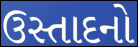
ઉસ્તાદનો